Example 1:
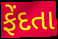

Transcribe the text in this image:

ફેંદતા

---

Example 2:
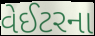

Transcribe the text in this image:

વેઈટરના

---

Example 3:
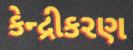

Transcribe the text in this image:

કેન્દ્રીકરણ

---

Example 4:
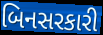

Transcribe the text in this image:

બિનસરકારી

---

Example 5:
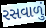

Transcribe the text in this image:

રસવાળું